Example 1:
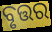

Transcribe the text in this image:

ବୃତ୍ତର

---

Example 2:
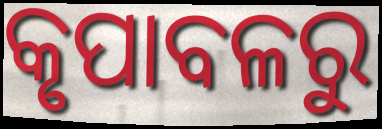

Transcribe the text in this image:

କୃପାବଳରୁ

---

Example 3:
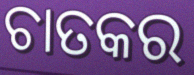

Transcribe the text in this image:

ଚାତକର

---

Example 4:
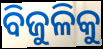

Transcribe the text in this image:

ବିଜୁଳିକୁ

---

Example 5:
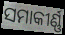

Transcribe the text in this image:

ସମାକୀର୍ଣ୍ଣ